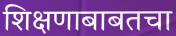
शिक्षणाबाबतचा